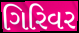
ગિરિવર